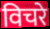
विचरे